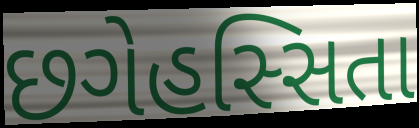
છગેહસ્સિતા